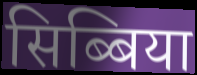
सिब्बिया